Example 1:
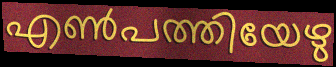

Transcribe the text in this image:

എൺപത്തിയേഴു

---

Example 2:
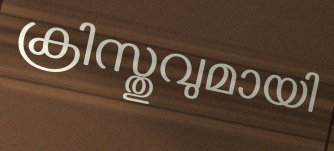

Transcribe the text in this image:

ക്രിസ്തുവുമായി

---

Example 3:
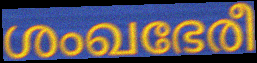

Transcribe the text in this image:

ശംഖഭേരീ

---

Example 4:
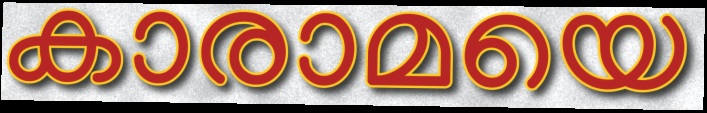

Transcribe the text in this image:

കാരാമയെ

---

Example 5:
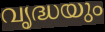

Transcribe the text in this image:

വൃദ്ധയും